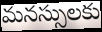
మనస్సులకు